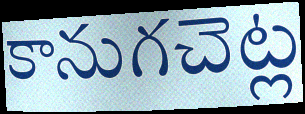
కానుగచెట్ల